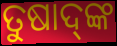
ତୁଷାଦ୍‌ଙ୍କ